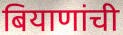
बियाणांची